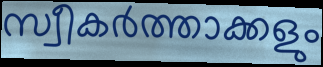
സ്വീകർത്താക്കളും